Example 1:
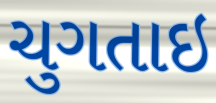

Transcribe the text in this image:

ચુગતાઇ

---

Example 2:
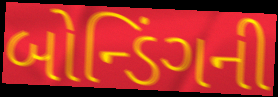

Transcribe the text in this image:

બોન્ડિંગની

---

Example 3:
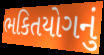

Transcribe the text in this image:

ભકિતયોગનું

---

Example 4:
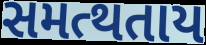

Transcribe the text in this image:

સમત્થતાય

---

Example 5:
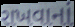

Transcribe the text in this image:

રાખવાનાં